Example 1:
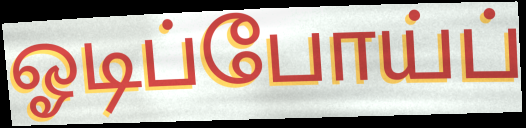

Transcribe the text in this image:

ஓடிப்போய்ப்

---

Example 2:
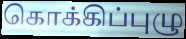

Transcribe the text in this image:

கொக்கிப்புழு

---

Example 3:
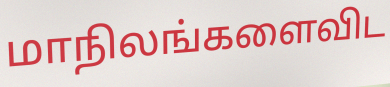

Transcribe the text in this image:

மாநிலங்களைவிட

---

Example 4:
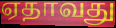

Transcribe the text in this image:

ஏதாவது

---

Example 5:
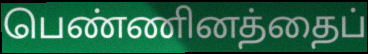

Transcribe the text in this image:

பெண்ணினத்தைப்